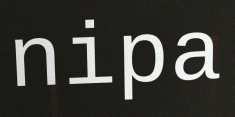
nipa